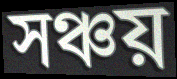
সঞ্চয়